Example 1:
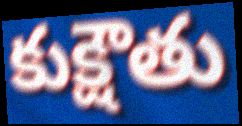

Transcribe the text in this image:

కుక్షౌతు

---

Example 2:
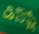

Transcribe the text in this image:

డిస్‌ప్లే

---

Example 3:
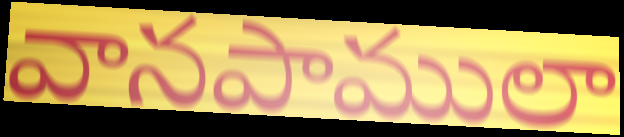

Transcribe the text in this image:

వానపాములా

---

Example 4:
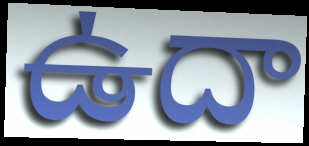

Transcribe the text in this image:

ఉదా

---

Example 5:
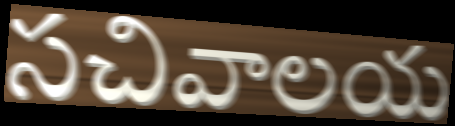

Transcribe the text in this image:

సచివాలయ